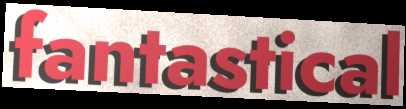
fantastical